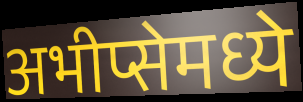
अभीप्सेमध्ये